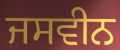
ਜਸਵੀਨ